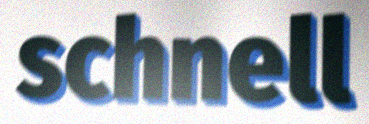
schnell